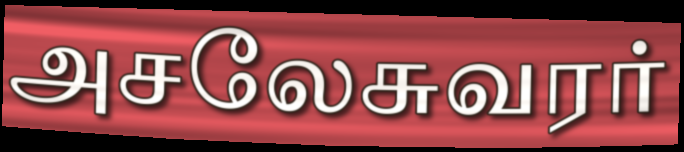
அசலேசுவரர்